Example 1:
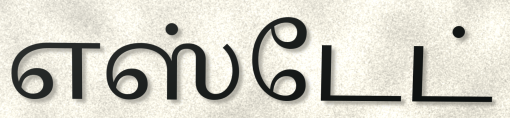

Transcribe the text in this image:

எஸ்டேட்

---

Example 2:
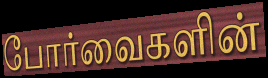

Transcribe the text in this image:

போர்வைகளின்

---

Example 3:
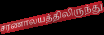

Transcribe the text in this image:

சரணாலயத்திலிருந்து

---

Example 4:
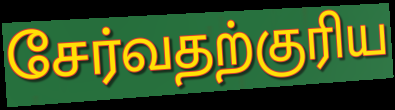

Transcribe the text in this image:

சேர்வதற்குரிய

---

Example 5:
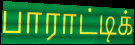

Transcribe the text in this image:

பாராட்டிக்